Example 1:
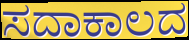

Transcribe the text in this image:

ಸದಾಕಾಲದ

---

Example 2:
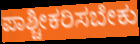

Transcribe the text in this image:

ಪಾಶ್ಚೀಕರಿಸಬೇಕು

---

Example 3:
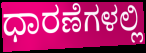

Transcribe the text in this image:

ಧಾರಣೆಗಳಲ್ಲಿ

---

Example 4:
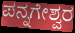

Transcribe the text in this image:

ಪನ್ನಗೇಶ್ವರ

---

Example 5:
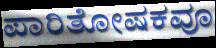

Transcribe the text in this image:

ಪಾರಿತೋಷಕವೂ